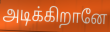
அடிக்கிறானே